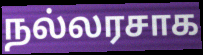
நல்லரசாக